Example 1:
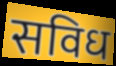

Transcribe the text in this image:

सविध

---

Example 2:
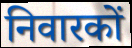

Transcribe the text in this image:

निवारकों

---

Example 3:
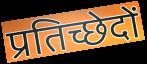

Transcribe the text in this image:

प्रतिच्छेदों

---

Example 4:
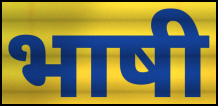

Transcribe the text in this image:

भाषी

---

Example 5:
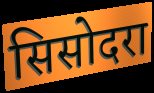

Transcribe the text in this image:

सिसोदरा